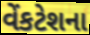
વેંકટેશના